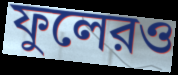
ফুলেরও